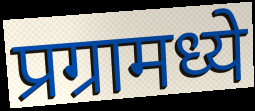
प्रग्रामध्ये